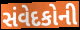
સંવેદકોની